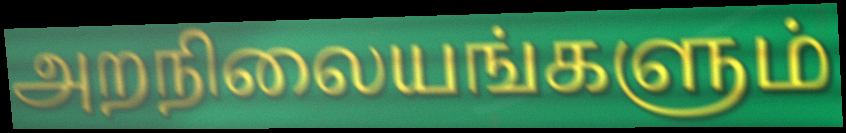
அறநிலையங்களும்